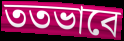
ততভাবে